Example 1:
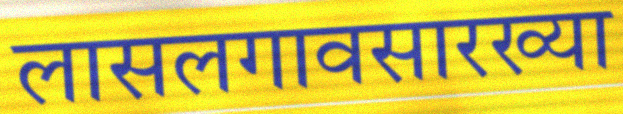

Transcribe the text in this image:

लासलगावसारख्या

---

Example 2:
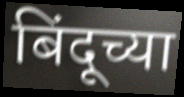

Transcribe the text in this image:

बिंदूच्या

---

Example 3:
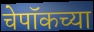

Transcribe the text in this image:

चेपॉकच्या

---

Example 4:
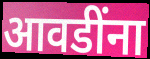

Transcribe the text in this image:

आवडींना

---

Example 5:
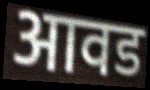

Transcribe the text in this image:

आवड